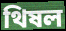
থিষল